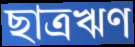
ছাত্রঋণ